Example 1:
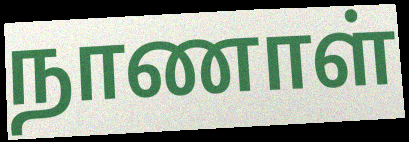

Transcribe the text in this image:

நாணாள்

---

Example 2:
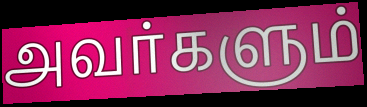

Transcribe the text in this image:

அவர்களும்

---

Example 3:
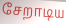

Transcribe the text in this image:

சேறாடிய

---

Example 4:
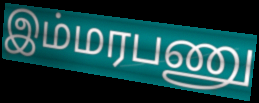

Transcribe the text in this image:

இம்மரபணு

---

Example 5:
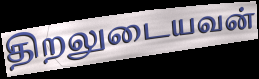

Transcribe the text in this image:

திறலுடையவன்